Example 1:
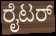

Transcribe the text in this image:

ರೈಟರ್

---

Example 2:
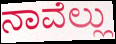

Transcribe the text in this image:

ನಾವೆಲ್ಲು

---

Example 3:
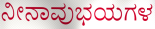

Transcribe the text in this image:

ನೀನಾವುಭಯಗಳ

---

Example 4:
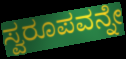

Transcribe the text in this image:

ಸ್ವರೂಪವನ್ನೇ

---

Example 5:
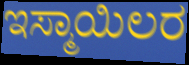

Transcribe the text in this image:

ಇಸ್ಮಾಯಿಲರ